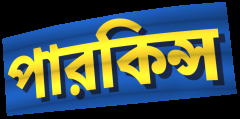
পারকিন্স